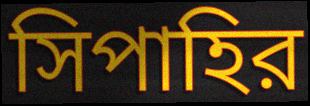
সিপাহির